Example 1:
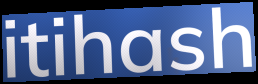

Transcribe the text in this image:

itihash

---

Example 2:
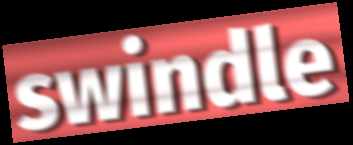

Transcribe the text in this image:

swindle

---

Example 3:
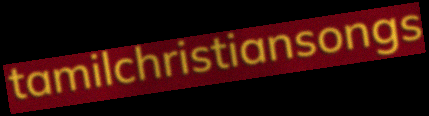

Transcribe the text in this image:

tamilchristiansongs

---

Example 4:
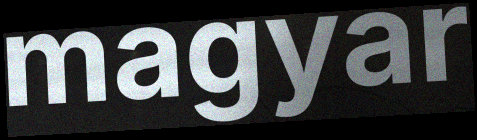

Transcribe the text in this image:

magyar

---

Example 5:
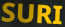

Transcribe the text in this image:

SURI